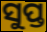
ସୁପ୍ତ